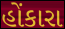
હોંકારા